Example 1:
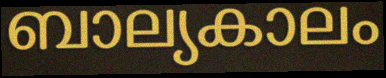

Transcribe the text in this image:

ബാല്യകാലം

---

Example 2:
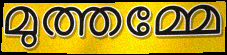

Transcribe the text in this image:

മുത്തമ്മേ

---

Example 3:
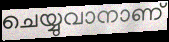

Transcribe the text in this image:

ചെയ്യുവാനാണ്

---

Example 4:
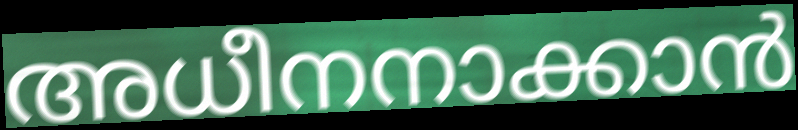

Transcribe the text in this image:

അധീനനാക്കാൻ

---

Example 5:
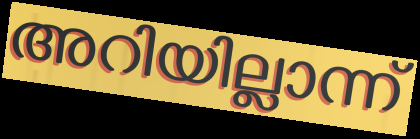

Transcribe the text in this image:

അറിയില്ലാന്ന്